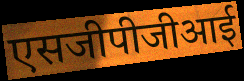
एसजीपीजीआई